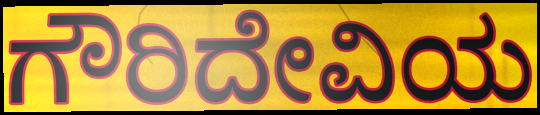
ಗೌರಿದೇವಿಯ